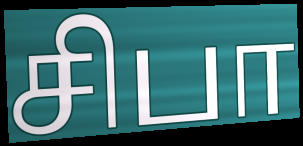
சிபா